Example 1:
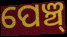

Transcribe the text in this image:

ପେଞ୍ଚ୍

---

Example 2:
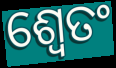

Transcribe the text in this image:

ଶ୍ଵେତଂ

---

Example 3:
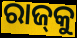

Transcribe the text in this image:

ରାଜ୍‍କୁ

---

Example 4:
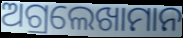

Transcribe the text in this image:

ଅଗ୍ରଲେଖାମାନ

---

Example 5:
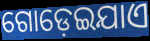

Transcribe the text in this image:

ଗୋଡ଼େଇଯାଏ